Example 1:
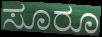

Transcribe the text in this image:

ಸೂರೂ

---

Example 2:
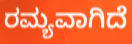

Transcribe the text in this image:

ರಮ್ಯವಾಗಿದೆ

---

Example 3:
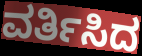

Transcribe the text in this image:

ವರ್ತಿಸಿದ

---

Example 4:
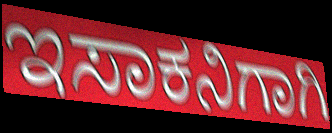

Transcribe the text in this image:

ಇಸಾಕನಿಗಾಗಿ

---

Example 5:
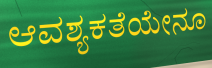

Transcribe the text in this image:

ಆವಶ್ಯಕತೆಯೇನೂ